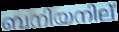
ബനിയനില്